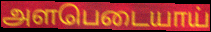
அளபெடையாய்